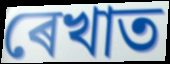
ৰেখাত